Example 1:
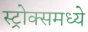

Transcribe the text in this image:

स्ट्रोक्समध्ये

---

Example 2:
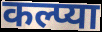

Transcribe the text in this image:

कल्प्या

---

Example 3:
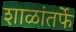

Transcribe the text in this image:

शाळांतर्फे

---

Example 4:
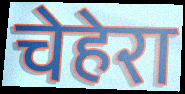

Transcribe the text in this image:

चेहेरा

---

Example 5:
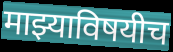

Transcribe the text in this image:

माझ्याविषयीच